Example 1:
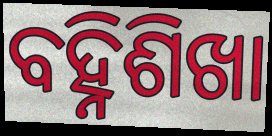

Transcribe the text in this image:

ବହ୍ନିଶିଖା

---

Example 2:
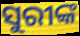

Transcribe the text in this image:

ସୁରୀଙ୍କ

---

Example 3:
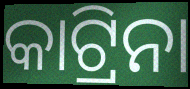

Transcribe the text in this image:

କାଟ୍ରିନା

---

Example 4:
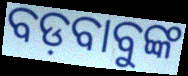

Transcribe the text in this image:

ବଡ଼ବାବୁଙ୍କ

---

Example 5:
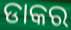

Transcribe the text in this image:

ଡାକର